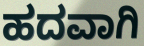
ಹದವಾಗಿ